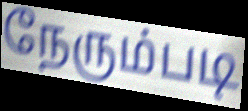
நேரும்படி